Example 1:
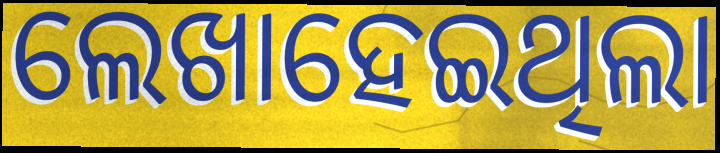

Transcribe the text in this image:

ଲେଖାହେଇଥିଲା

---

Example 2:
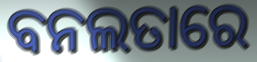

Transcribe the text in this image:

ବନଲତାରେ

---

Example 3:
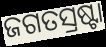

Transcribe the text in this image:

ଜଗତସ୍ରଷ୍ଟା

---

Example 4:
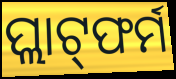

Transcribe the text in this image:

ପ୍ଲାଟ୍‌ଫର୍ମ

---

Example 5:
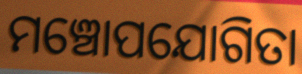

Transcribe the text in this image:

ମଞ୍ଚୋପଯୋଗିତା